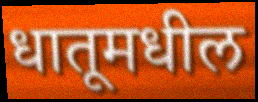
धातूमधील